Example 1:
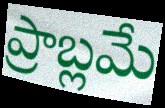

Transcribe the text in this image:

ప్రాబ్లమే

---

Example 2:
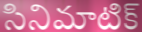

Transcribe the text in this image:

సినిమాటిక్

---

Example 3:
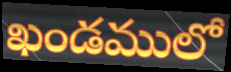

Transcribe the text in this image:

ఖండములో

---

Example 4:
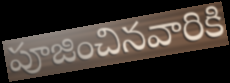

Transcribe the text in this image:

పూజించినవారికి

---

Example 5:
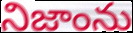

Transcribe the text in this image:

నిజాంను